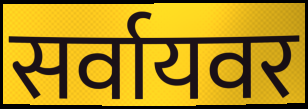
सर्वायवर